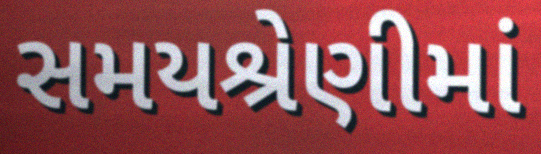
સમયશ્રેણીમાં